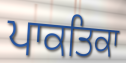
ਪਾਕਤਿਕਾ